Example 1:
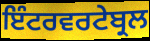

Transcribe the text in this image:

ਇੰਟਰਵਰਟੇਬ੍ਰਲ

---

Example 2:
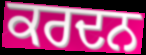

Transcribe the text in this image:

ਕਰਦਨ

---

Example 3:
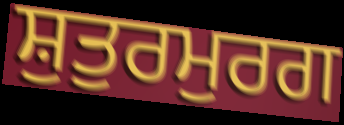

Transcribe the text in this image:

ਸ਼ੁਤੁਰਮੁਰਗ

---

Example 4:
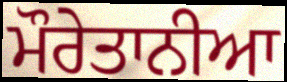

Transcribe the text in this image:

ਮੌਰੇਤਾਨੀਆ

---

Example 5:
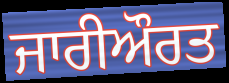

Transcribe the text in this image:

ਜਾਰੀਔਰਤ